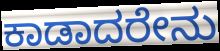
ಕಾಡಾದರೇನು